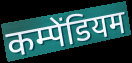
कम्पेंडियम